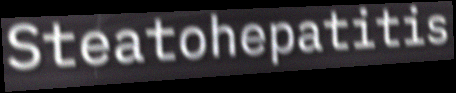
Steatohepatitis